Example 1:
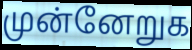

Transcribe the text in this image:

முன்னேறுக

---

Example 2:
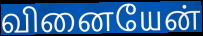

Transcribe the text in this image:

வினையேன்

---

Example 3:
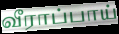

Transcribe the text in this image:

வீராப்பாய்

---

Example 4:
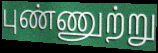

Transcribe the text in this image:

புண்ணுற்று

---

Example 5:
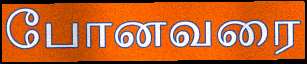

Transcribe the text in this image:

போனவரை